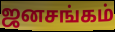
ஜனசங்கம்